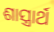
ଶାସ୍ତ୍ରାର୍ଥ